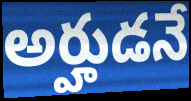
అర్హుడనే